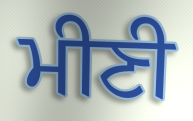
ਮੀਣੀ